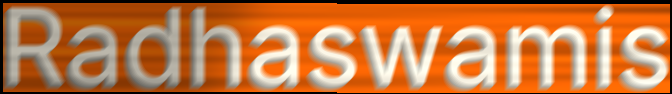
Radhaswamis